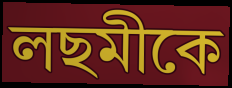
লছমীকে